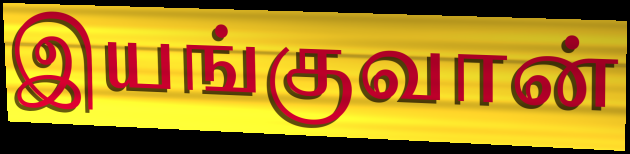
இயங்குவான்